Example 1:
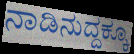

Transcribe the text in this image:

ನಾಡಿನುದ್ದಕ್ಕೂ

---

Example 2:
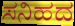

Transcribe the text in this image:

ಸನಿಹದ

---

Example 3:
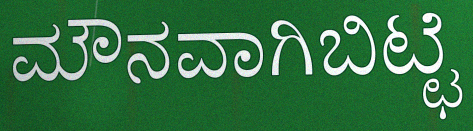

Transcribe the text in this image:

ಮೌನವಾಗಿಬಿಟ್ಟೆ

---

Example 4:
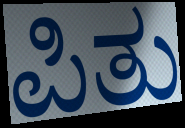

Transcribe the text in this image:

ಪಿತು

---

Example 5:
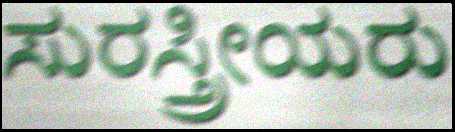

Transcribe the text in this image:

ಸುರಸ್ತ್ರೀಯರು